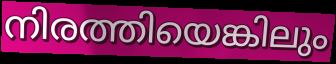
നിരത്തിയെങ്കിലും